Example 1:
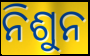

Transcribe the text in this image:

ନିଶୁନ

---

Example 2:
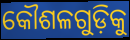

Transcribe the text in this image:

କୌଶଳଗୁଡ଼ିକୁ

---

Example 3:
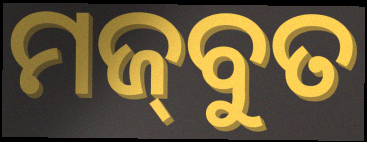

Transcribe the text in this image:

ମଜ୍‌ବୁତ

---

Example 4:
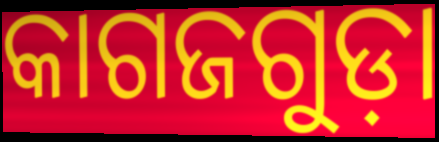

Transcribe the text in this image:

କାଗଜଗୁଡ଼ା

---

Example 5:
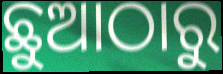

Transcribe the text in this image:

ଛୁଆଠାରୁ